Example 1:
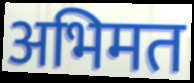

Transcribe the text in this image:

अभिमत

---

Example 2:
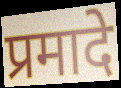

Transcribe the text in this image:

प्रमादे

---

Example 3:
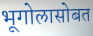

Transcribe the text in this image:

भूगोलासोबत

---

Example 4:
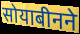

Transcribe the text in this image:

सोयाबीनने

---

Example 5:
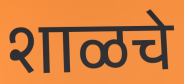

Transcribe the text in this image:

शाळचे